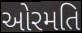
ઓરમતિ